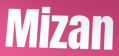
Mizan